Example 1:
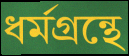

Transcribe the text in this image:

ধর্মগ্রন্থে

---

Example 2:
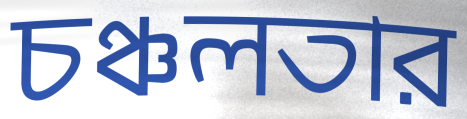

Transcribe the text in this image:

চঞ্চলতার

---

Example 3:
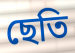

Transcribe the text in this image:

ছেতি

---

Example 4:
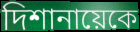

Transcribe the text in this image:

দিশানায়েকে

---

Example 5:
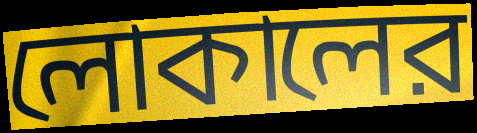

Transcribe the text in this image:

লোকালের